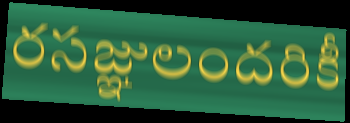
రసజ్ఞులందరికీ